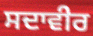
ਸਦਾਵੀਰ